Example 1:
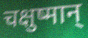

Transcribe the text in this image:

चक्षुष्मान्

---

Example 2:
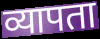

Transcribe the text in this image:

व्यापता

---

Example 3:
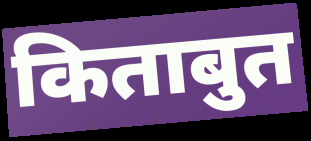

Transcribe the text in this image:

किताबुत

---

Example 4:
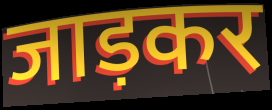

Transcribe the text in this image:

जाड़कर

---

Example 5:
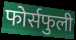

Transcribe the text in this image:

फोर्सफुली